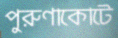
পুরুণাকোটে